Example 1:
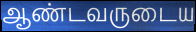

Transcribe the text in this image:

ஆண்டவருடைய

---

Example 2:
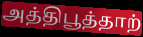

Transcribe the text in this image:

அத்திபூத்தாற்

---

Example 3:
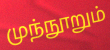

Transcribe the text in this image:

முந்நூறும்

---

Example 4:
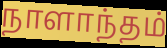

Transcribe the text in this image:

நாளாந்தம்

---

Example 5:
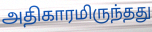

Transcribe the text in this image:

அதிகாரமிருந்தது